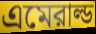
এমেরাল্ড